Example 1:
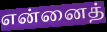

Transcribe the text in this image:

என்னைத்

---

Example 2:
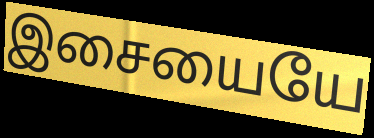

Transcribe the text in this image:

இசையையே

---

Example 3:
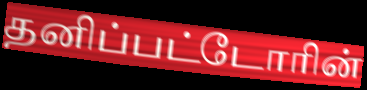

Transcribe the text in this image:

தனிப்பட்டோரின்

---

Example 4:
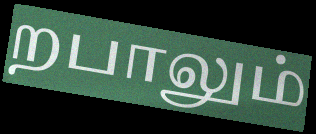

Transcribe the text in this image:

றபாலும்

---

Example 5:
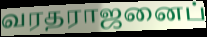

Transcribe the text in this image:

வரதராஜனைப்